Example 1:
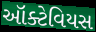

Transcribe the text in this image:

ઑક્ટેવિયસ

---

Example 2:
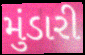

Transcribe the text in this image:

મુંડારી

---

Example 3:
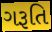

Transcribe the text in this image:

ગરૂતિ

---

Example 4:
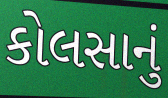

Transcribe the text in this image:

કોલસાનું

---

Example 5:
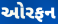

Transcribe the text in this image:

ઓરફન